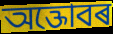
অক্তোবৰ